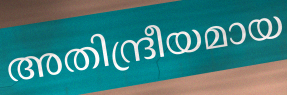
അതിന്ദ്രീയമായ